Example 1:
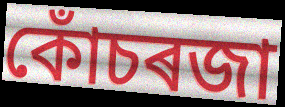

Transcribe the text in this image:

কোঁচৰজা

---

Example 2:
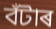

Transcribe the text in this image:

বঁটাৰ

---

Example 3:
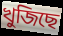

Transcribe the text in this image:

খুজিছে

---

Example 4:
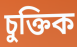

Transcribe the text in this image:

চুক্তিক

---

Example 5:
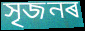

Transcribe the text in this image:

সৃজনৰ